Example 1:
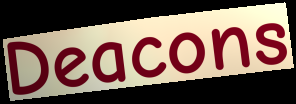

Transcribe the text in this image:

Deacons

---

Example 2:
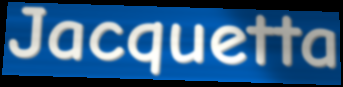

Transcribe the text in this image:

Jacquetta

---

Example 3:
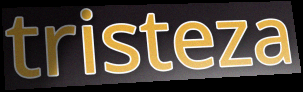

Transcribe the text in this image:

tristeza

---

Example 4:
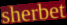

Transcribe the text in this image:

sherbet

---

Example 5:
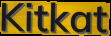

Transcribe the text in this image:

Kitkat